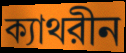
ক্যাথরীন